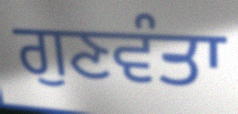
ਗੁਣਵੰਤਾ